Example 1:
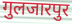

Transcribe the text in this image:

गुलजारपुर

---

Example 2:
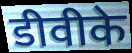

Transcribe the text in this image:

डीवीके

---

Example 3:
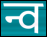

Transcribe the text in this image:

न्व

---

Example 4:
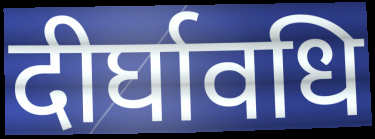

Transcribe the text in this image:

दीर्घावधि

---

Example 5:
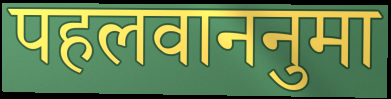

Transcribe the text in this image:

पहलवाननुमा